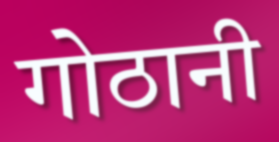
गोठानी